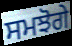
ਸਮਝੋਗੇ